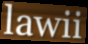
lawii